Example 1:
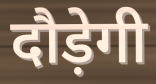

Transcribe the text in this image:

दौड़ेगी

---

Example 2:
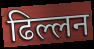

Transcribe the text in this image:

ढिल्लन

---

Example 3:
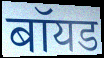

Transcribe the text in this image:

बॉयड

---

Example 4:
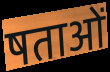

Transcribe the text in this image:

षताओं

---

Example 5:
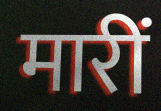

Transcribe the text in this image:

मारीं